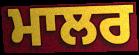
ਮਾਲਰ